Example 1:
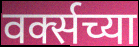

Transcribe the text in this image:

वर्क्‍सच्या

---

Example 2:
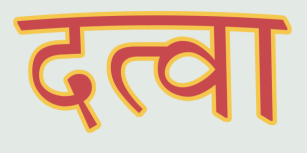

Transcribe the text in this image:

दत्वा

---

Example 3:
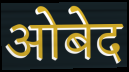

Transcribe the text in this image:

ओबेद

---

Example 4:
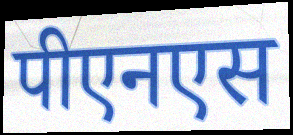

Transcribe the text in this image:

पीएनएस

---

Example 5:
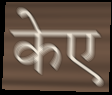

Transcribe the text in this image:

केए